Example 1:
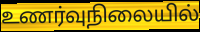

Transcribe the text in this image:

உணர்வுநிலையில்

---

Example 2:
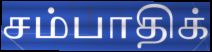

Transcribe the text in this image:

சம்பாதிக்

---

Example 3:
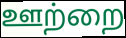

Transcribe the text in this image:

ஊற்றை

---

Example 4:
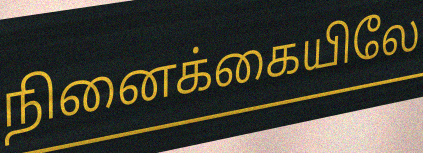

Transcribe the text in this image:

நினைக்கையிலே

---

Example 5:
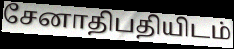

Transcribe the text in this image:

சேனாதிபதியிடம்